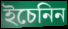
ইচেনিন